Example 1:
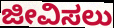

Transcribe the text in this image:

ಜೀವಿಸಲು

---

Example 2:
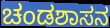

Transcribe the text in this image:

ಚಂಡಶಾಸನ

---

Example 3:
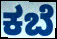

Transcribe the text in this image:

ಕಬೆ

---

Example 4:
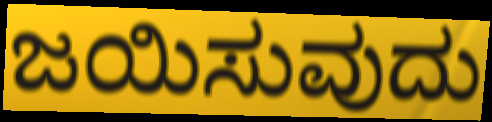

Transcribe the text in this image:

ಜಯಿಸುವುದು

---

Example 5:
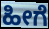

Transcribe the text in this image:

ಹೀಗೆ